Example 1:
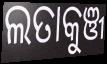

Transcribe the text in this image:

ଲତାକୁଞ୍ଜ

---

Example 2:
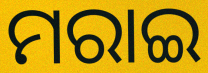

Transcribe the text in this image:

ମରାଇ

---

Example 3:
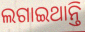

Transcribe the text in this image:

ଲଗାଇଥାନ୍ତି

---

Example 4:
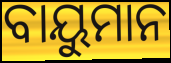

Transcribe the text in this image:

ବାୟୁମାନ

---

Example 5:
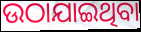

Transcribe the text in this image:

ଉଠାଯାଇଥିବା